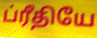
ப்ரீதியே